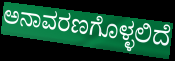
ಅನಾವರಣಗೊಳ್ಳಲಿದೆ